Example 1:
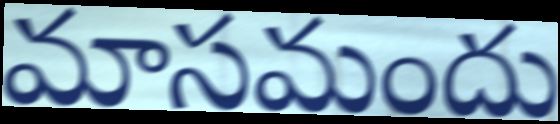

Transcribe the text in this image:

మాసమందు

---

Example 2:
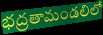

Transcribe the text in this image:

భద్రతామండలిలో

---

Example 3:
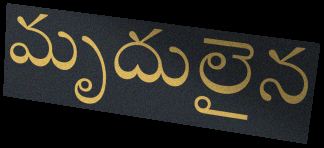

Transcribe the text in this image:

మృదులైన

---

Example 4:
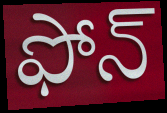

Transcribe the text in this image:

ఫోన్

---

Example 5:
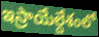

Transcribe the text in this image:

ఇస్రాయేల్దేశంలో